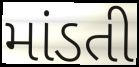
માંડતી